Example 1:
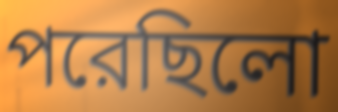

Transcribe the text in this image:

পরেছিলো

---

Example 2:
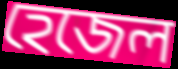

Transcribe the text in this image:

হেজেল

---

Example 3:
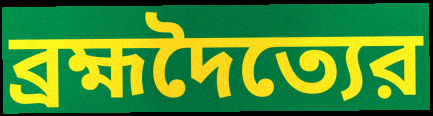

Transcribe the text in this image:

ব্রহ্মদৈত্যের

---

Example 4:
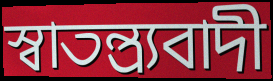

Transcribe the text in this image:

স্বাতন্ত্র্যবাদী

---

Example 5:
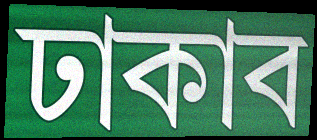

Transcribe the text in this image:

ঢাকাব